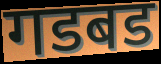
गडबड